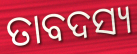
ତାବଦସ୍ୟ